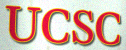
UCSC